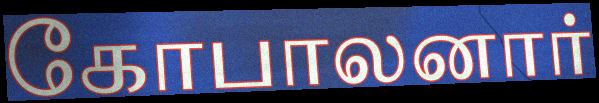
கோபாலனார்